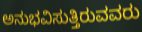
ಅನುಭವಿಸುತ್ತಿರುವವರು